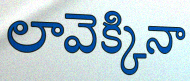
లావెక్కినా